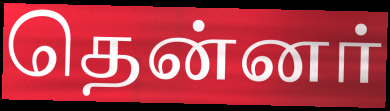
தென்னர்